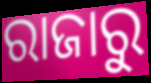
ରାଜାରୁ